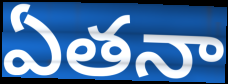
ఏతనా